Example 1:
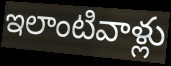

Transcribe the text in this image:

ఇలాంటివాళ్లు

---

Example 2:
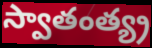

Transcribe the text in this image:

స్వాతంత్య్ర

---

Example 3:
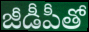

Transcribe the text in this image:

జీడీపీతో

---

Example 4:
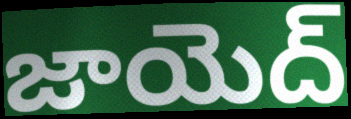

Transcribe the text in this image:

జాయెద్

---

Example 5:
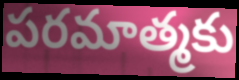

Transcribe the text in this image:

పరమాత్మకు